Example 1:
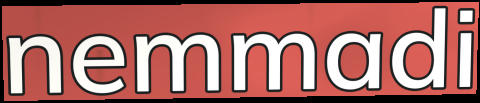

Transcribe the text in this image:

nemmadi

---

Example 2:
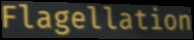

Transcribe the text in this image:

Flagellation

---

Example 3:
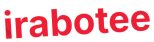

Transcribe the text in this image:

irabotee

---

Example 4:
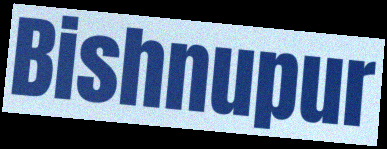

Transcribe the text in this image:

Bishnupur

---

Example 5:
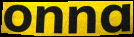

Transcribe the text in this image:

onna